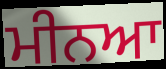
ਮੀਨਆ